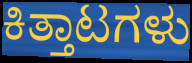
ಕಿತ್ತಾಟಗಳು